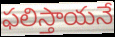
ఫలిస్తాయనే